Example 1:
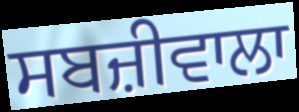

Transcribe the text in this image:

ਸਬਜ਼ੀਵਾਲਾ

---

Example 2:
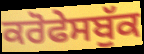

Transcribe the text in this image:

ਕਰੋਫੇਸਬੁੱਕ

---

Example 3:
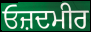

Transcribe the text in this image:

ਓਜ਼ਦਮੀਰ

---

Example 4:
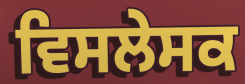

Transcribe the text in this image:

ਵਿਸਲੇਸਕ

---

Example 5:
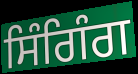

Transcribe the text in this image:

ਸਿੰਗਿੰਗ